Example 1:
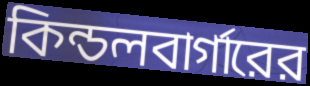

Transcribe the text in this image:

কিন্ডলবার্গারের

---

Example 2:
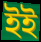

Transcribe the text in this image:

ইই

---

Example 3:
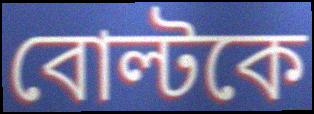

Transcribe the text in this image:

বোল্টকে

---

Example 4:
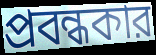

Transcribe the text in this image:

প্রবন্ধকার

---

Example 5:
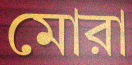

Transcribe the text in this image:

মোরা